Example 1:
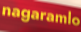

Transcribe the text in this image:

nagaramlo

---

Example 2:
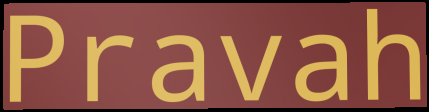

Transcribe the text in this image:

Pravah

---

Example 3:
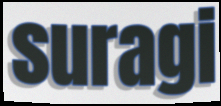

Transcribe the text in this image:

suragi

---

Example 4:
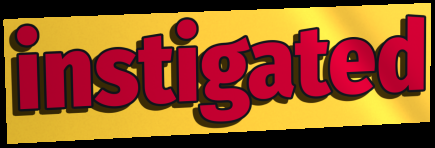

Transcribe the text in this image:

instigated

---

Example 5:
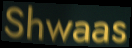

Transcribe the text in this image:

Shwaas